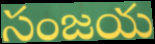
సంజయ